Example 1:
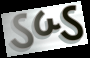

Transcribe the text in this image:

ડબ્ડ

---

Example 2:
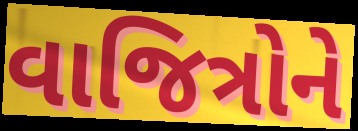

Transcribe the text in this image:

વાજિત્રોને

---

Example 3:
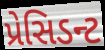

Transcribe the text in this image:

પ્રેસિડન્ટ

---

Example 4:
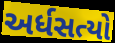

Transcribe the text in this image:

અર્ધસત્યો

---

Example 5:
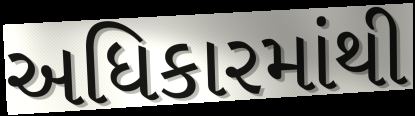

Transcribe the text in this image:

અધિકારમાંથી